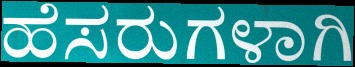
ಹೆಸರುಗಳಾಗಿ